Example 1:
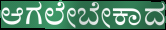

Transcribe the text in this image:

ಆಗಲೇಬೇಕಾದ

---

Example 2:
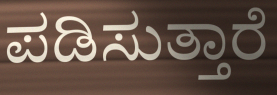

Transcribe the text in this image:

ಪಡಿಸುತ್ತಾರೆ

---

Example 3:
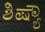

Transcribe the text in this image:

ಶಿಷ್ಯೌ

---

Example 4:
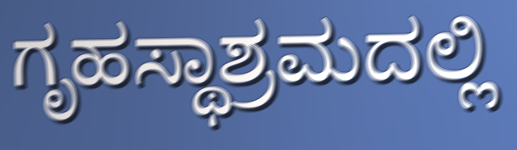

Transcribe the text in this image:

ಗೃಹಸ್ಥಾಶ್ರಮದಲ್ಲಿ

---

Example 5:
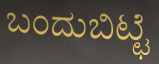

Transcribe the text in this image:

ಬಂದುಬಿಟ್ಟೆ